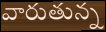
వారుతున్న